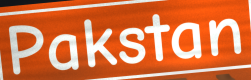
Pakstan